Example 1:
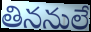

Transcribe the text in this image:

తిననులే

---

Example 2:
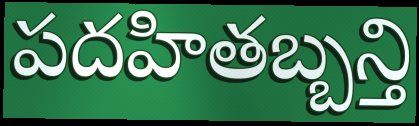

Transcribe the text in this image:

పదహితబ్బన్తి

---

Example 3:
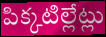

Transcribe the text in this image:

పిక్కటిల్లేట్లు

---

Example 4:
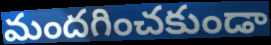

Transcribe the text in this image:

మందగించకుండా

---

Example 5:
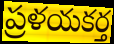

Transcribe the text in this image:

ప్రళయకర్త